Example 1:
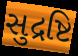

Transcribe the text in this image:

સુદ્રષ્ટિ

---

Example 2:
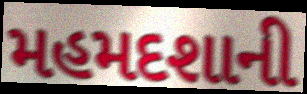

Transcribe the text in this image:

મહમદશાની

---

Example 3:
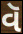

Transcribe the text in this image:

વૅ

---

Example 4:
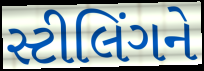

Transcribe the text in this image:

સ્ટીલિંગને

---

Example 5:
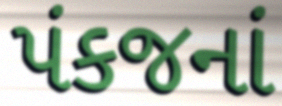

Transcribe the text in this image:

પંકજનાં